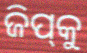
ଜିପ୍‍କୁ